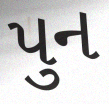
પુન